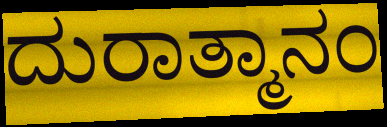
ದುರಾತ್ಮಾನಂ